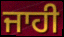
ਜਾਹੀ